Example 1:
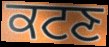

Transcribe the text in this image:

ਕਟਣ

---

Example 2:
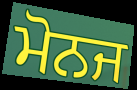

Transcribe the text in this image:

ਮੋਨਜ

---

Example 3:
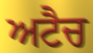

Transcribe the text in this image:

ਅਟੈਚ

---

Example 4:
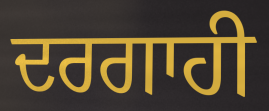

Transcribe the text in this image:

ਦਰਗਾਹੀ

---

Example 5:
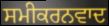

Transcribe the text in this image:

ਸਮੀਕਰਨਵਾਦ